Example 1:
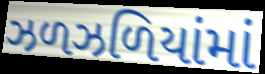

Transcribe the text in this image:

ઝળઝળિયાંમાં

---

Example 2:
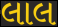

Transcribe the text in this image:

લાલ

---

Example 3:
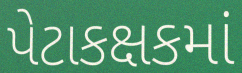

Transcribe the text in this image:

પેટાકક્ષકમાં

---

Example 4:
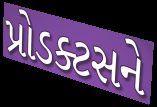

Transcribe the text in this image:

પ્રોડક્ટસને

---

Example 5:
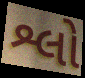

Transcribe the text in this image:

શ્લો